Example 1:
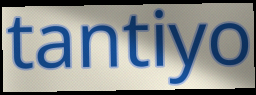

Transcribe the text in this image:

tantiyo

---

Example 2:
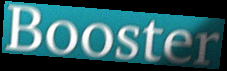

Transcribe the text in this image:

Booster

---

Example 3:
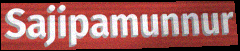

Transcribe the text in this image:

Sajipamunnur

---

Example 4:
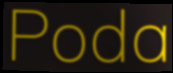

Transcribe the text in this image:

Poda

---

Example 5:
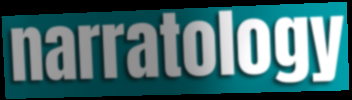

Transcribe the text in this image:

narratology